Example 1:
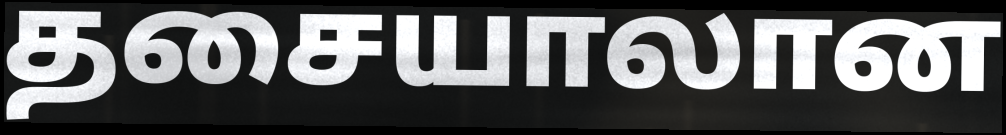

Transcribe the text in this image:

தசையாலான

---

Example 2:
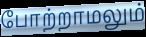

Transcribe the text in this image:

போற்றாமலும்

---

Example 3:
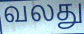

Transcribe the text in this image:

வலது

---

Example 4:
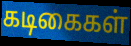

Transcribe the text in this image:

கடிகைகள்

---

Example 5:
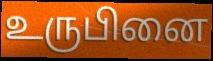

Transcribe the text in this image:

உருபினை